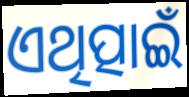
ଏଥିତ୍ପାଇଁ